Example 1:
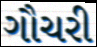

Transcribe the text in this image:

ગૌચરી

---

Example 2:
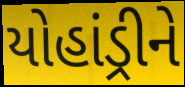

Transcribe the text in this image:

યોહાંડ્રીને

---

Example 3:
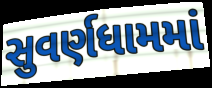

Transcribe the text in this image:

સુવર્ણધામમાં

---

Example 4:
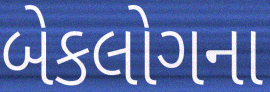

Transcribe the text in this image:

બેકલોગના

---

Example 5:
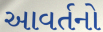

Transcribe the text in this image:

આવર્તનો